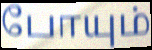
போயும்